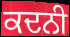
ਕਦਨੀ